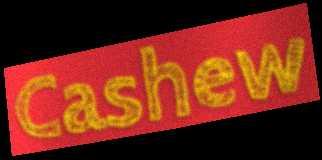
Cashew